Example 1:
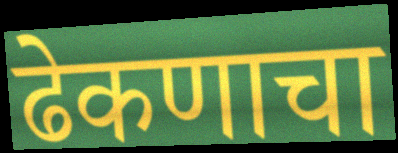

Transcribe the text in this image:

ढेकणाचा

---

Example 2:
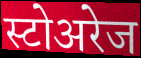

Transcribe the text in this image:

स्टोअरेज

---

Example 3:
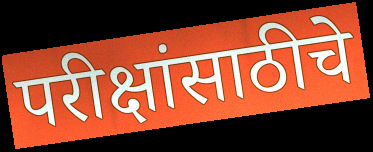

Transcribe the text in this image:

परीक्षांसाठीचे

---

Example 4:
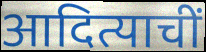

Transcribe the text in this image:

आदित्याचीं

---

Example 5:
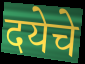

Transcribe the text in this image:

दयेचे